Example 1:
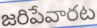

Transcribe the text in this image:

జరిపేవారట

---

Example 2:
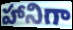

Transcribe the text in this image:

హానిగా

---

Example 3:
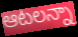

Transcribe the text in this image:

ఆటలన్నా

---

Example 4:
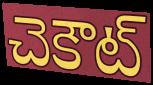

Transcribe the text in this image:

చెకౌట్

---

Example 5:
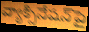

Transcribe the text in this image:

వ్యాక్సినేషన్‌పై